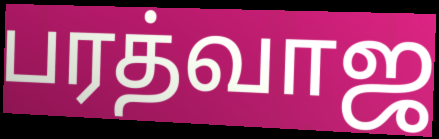
பரத்வாஜ